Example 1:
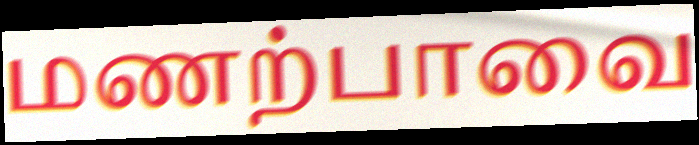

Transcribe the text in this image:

மணற்பாவை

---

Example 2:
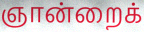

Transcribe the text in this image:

ஞான்றைக்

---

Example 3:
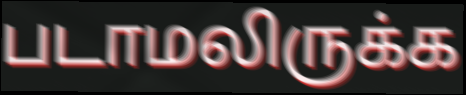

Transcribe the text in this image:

படாமலிருக்க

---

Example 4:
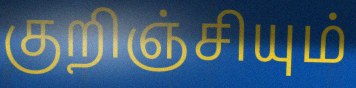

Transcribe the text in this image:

குறிஞ்சியும்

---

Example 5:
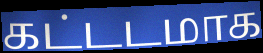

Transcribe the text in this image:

கட்டடமாக